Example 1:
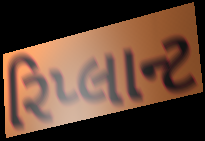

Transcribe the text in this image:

રિપ્લાન્ટ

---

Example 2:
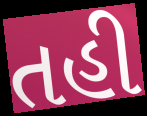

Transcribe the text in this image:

તહી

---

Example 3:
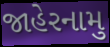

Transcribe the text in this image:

જાહેરનામુ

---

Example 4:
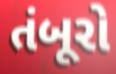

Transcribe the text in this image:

તંબૂરો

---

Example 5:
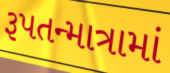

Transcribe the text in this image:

રૂપતન્માત્રામાં